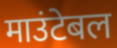
माउंटेबल